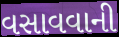
વસાવવાની